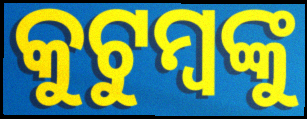
କୁଟୁମ୍ବଙ୍କୁ